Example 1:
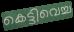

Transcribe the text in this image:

കെട്ടിവെച്ച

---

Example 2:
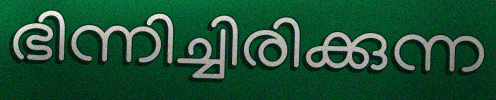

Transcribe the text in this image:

ഭിന്നിച്ചിരിക്കുന്ന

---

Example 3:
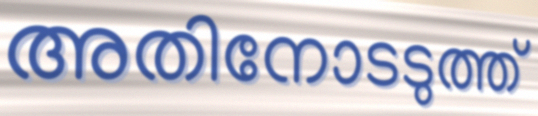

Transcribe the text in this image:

അതിനോടടുത്ത്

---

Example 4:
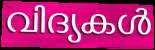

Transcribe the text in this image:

വിദ്യകൾ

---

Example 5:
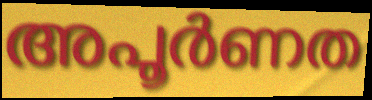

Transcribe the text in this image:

അപൂർണത